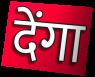
देंगा